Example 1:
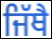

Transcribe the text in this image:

ਜਿੱਥੈ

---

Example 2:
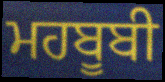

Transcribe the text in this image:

ਮਹਬੂਬੀ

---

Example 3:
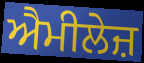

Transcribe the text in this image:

ਐਮੀਲੇਜ਼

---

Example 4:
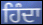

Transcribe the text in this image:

ਹਿੰਦਾ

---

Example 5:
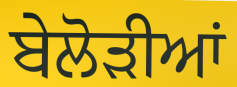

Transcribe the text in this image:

ਬੇਲੋੜੀਆਂ